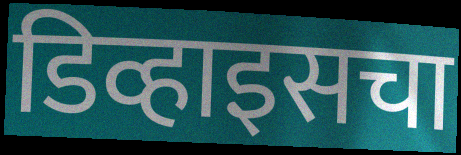
डिव्हाइसचा